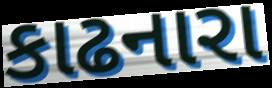
કાઢનારા